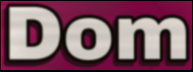
Dom